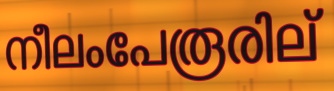
നീലംപേരൂരില്